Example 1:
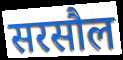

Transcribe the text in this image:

सरसौल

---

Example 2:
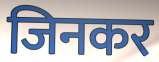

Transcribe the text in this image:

जिनकर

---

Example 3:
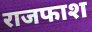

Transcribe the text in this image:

राजफाश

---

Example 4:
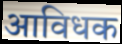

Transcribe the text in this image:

आविधक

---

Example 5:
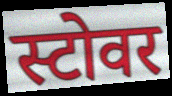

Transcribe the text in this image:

स्टोवर